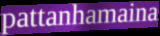
pattanhamaina